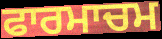
ਫਾਰਮਾਚਮ